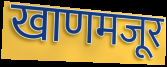
खाणमजूर